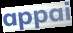
appai